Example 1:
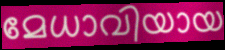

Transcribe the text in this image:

മേധാവിയായ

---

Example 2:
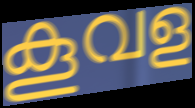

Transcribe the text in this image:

കൂവള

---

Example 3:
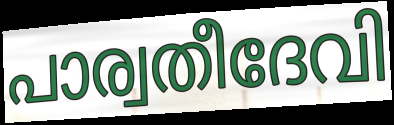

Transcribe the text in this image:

പാര്വതീദേവി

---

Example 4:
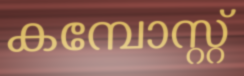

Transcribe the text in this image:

കമ്പോസ്റ്റ്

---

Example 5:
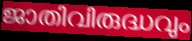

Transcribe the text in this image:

ജാതിവിരുദ്ധവും